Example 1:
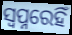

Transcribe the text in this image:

ସ୍ୱପ୍ନରେହିଁ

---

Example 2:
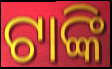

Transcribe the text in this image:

ଟାଙ୍କି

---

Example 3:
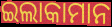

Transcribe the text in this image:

ଇଲାକାମାନ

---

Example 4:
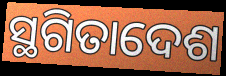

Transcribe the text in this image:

ସ୍ଥଗିତାଦେଶ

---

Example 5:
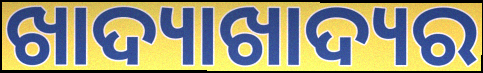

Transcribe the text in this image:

ଖାଦ୍ୟାଖାଦ୍ୟର